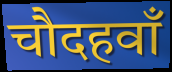
चौदहवाँ